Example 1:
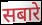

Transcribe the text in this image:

सबारे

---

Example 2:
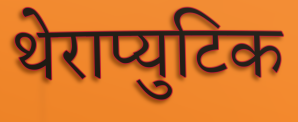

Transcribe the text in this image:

थेराप्युटिक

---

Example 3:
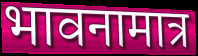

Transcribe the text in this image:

भावनामात्र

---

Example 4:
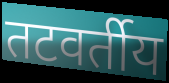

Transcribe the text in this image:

तटवर्तीय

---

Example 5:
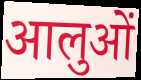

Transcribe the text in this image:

आलुओं